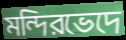
মন্দিরভেদে